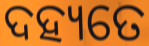
ଦହ୍ୟତେ